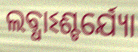
ଲବ୍ଧାଽଶ୍ଚର୍ଯ୍ୟୋ